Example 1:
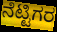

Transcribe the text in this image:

ನೆಟ್ಟಿಗರ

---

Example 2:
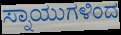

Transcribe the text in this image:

ಸ್ನಾಯುಗಳಿಂದ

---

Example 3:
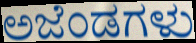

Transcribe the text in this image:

ಅಜೆಂಡಗಳು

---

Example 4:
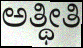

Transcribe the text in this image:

ಅತ್ಥೀತಿ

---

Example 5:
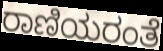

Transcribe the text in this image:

ರಾಣಿಯರಂತೆ